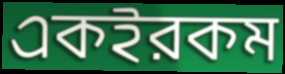
একইরকম